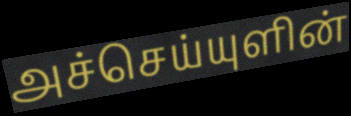
அச்செய்யுளின்